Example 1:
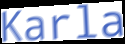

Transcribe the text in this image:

Karla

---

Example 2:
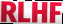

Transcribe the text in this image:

RLHF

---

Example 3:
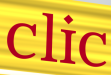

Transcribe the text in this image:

clic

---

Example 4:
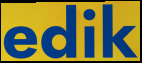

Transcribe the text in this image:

edik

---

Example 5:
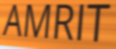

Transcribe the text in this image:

AMRIT